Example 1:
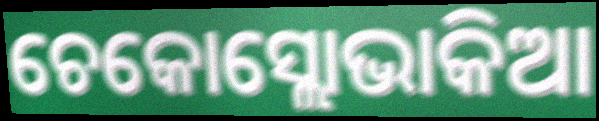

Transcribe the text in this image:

ଚେକୋସ୍ଲୋଭାକିଆ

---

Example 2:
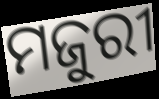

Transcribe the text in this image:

ମଜୁରୀ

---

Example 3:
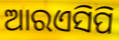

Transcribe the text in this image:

ଆରଏସିପି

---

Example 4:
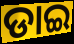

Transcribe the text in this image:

ଡାଇ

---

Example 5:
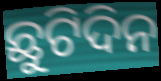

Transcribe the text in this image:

ଛୁଟିଦିନ